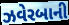
ઝવેરબાની